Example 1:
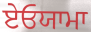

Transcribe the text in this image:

ਏਓਯਾਮਾ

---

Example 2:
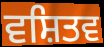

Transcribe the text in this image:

ਵਸ਼ਿਤਵ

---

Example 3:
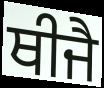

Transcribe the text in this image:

ਥੀਜੈ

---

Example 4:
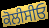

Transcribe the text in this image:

ਕੋਲੀਸੀਓ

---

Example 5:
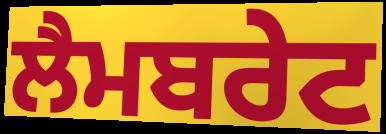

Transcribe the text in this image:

ਲੈਮਬਰੇਟ